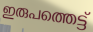
ഇരുപത്തെട്ട്